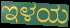
ಇಳಯ